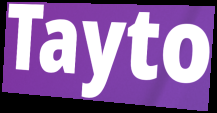
Tayto